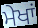
ਮੇਖਾਂ